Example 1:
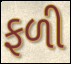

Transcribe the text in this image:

ફળી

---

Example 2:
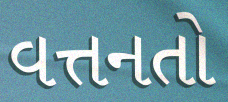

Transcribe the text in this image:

વત્તનતો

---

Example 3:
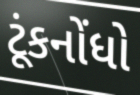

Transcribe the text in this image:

ટૂંકનોંધો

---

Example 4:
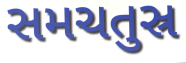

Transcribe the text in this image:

સમચતુસ્ર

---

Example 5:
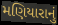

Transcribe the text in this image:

મણિયારાનું